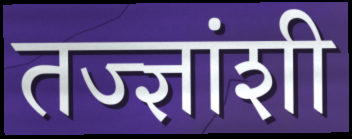
तज्ज्ञांशी